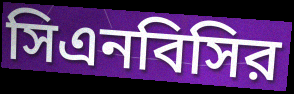
সিএনবিসির